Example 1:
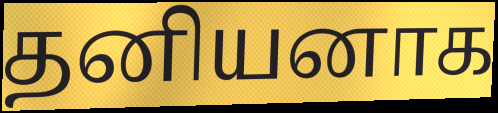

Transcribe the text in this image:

தனியனாக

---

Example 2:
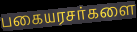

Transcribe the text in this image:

பகையரசர்களை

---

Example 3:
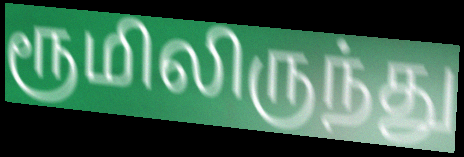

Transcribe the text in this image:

ரூமிலிருந்து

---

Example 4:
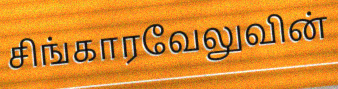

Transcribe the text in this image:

சிங்காரவேலுவின்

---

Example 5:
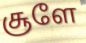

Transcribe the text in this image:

சூளே